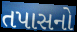
તપાસનો